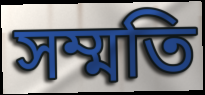
সম্মতি